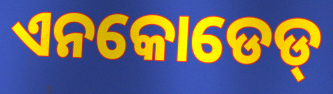
ଏନକୋଡେଡ୍